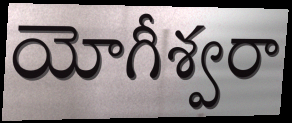
యోగీశ్వరా